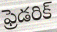
ఫ్రెడరిక్